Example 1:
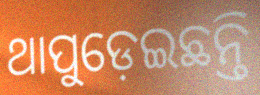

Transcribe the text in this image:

ଥାପୁଡ଼େଇଛନ୍ତି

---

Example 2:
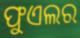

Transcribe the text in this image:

ଫୁଏଲର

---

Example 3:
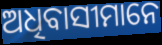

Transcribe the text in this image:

ଅଧିବାସୀମାନେ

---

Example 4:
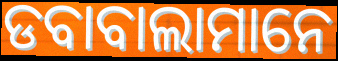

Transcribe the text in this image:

ଡବାବାଲାମାନେ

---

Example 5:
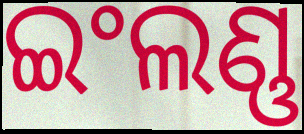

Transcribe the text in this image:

ଇଂଲଣ୍ଣ